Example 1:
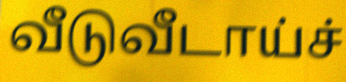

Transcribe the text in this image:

வீடுவீடாய்ச்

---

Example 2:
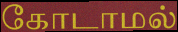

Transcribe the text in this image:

கோடாமல்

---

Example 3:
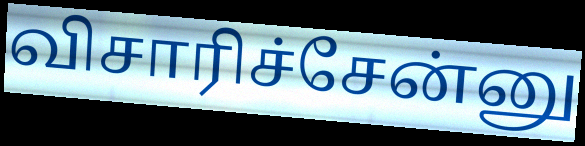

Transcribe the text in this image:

விசாரிச்சேன்னு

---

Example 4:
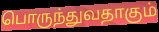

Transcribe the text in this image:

பொருந்துவதாகும்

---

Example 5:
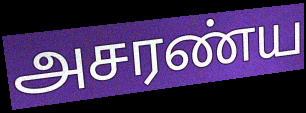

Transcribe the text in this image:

அசரண்ய